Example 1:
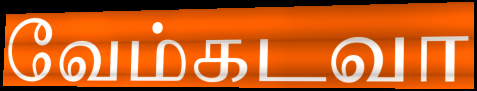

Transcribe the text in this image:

வேம்கடவா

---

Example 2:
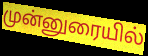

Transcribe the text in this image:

முன்னுரையில்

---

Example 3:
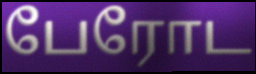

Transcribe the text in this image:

பேரோட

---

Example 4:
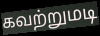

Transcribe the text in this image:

கவற்றுமடி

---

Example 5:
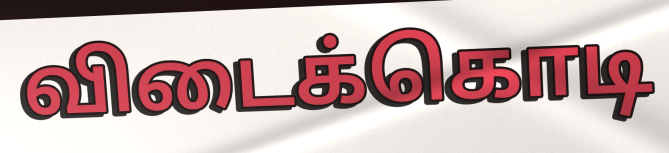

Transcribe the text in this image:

விடைக்கொடி